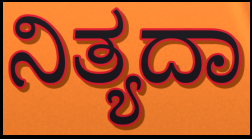
ನಿತ್ಯದಾ